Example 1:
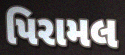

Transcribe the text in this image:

પિરામલ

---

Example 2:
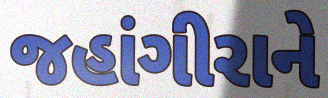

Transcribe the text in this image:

જહાંગીરાને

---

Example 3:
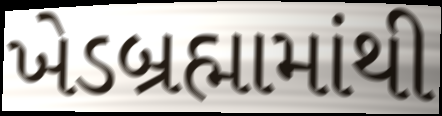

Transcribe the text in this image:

ખેડબ્રહ્મામાંથી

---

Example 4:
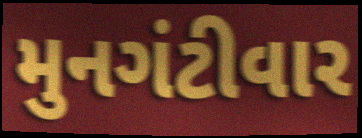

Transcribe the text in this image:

મુનગંટીવાર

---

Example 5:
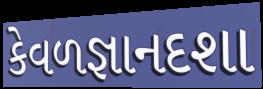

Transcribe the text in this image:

કેવળજ્ઞાનદશા